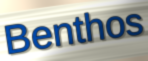
Benthos